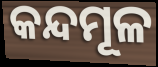
କନ୍ଦମୂଳ